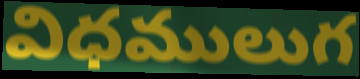
విధములుగ